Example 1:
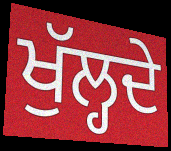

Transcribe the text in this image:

ਖੁੱਲ੍ਹਦੇ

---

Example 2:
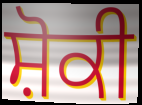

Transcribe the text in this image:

ਸ਼ੋਕੀ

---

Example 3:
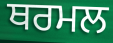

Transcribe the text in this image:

ਥਰਮਲ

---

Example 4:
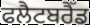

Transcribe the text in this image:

ਫਲੈਟਬਰੈੱਡ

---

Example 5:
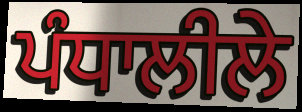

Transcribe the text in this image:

ਪੰਧਾਲੀਲੇ